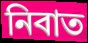
নিবাত